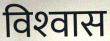
विश्‍वास